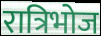
रात्रिभोज